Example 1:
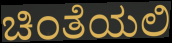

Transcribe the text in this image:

ಚಿಂತೆಯಲಿ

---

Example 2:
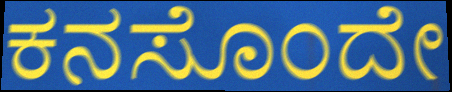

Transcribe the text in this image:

ಕನಸೊಂದೇ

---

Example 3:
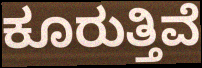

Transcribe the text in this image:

ಕೂರುತ್ತಿವೆ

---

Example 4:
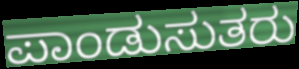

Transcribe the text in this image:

ಪಾಂಡುಸುತರು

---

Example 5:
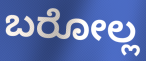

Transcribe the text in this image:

ಬರೋಲ್ಲ